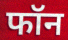
फॉन